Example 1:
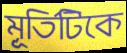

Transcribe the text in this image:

মূর্তিটিকে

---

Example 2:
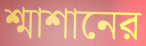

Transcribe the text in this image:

শ্মাশানের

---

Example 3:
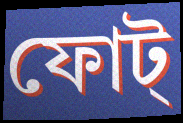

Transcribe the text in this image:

ফোট্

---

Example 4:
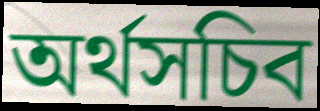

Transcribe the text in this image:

অর্থসচিব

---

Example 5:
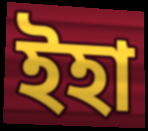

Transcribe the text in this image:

ইহা